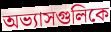
অভ্যাসগুলিকে